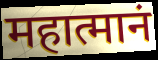
महात्मानं